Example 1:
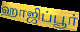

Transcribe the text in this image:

ஹாஜிப்பூர்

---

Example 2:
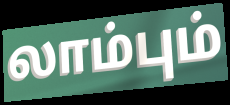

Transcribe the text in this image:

லாம்பும்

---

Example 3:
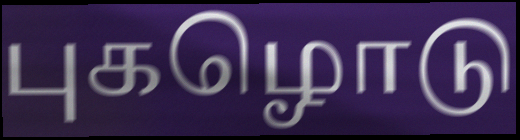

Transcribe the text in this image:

புகழொடு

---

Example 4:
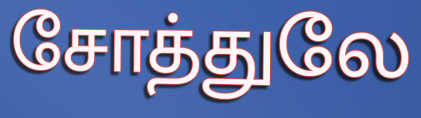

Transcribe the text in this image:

சோத்துலே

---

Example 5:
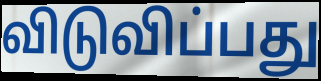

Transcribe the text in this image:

விடுவிப்பது